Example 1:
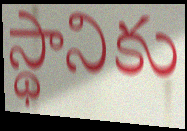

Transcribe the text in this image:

స్థానికు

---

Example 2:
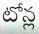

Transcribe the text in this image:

టోన్ల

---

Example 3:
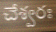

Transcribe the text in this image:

చేశ్వరః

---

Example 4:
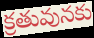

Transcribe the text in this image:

క్రతువునకు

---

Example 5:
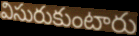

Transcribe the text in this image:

విసురుకుంటారు